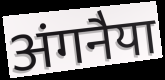
अंगनैया